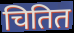
चितित